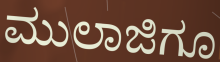
ಮುಲಾಜಿಗೂ